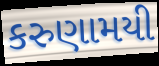
કરુણામયી